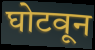
घोटवून